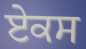
ਏਕਸ